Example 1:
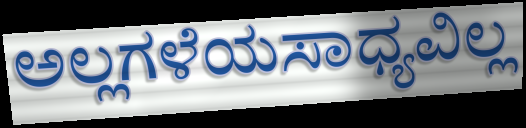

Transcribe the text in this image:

ಅಲ್ಲಗಳೆಯಸಾಧ್ಯವಿಲ್ಲ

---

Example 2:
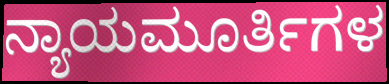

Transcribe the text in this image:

ನ್ಯಾಯಮೂರ್ತಿಗಳ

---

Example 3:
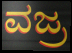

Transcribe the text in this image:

ವಜ್ರ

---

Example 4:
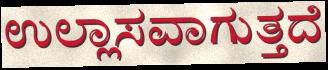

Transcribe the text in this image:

ಉಲ್ಲಾಸವಾಗುತ್ತದೆ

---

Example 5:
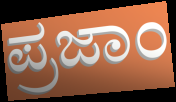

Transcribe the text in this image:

ಪ್ರಜಾಂ